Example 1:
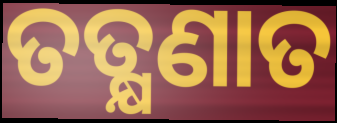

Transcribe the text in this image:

ତତ୍କ୍ଷଣାତ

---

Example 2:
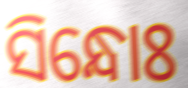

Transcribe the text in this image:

ସିନ୍ଧୋଃ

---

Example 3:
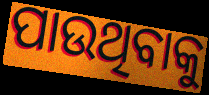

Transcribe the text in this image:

ପାଉଥିବାକୁ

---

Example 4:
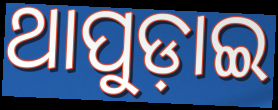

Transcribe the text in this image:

ଥାପୁଡ଼ାଇ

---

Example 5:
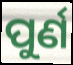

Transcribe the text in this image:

ପୁର୍ଣ